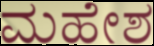
ಮಹೇಶ